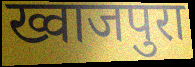
ख्वाजपुरा